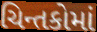
ચિન્તકોમાં